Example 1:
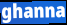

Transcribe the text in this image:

ghanna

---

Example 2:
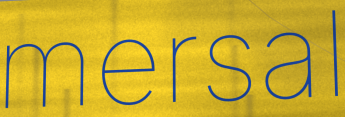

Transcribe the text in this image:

mersal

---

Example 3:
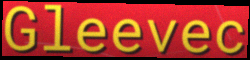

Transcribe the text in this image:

Gleevec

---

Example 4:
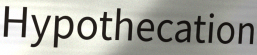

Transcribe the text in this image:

Hypothecation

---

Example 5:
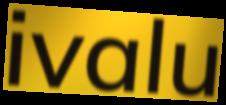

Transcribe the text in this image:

ivalu